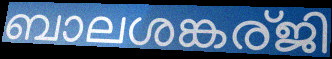
ബാലശങ്കര്ജി